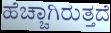
ಹೆಚ್ಚಾಗಿರುತ್ತದೆ